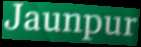
Jaunpur